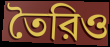
তৈরিও